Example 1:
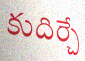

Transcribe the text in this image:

కుదిర్చే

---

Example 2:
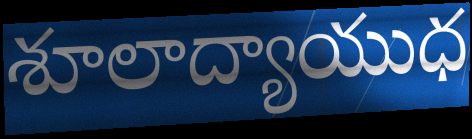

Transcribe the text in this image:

శూలాద్యాయుధ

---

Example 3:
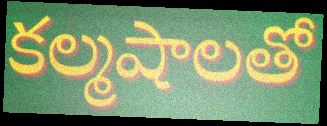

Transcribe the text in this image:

కల్మషాలతో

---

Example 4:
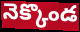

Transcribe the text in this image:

నెక్కొండ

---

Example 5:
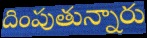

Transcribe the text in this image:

దింపుతున్నారు